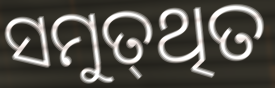
ସମୁତ୍‌ଥିତ